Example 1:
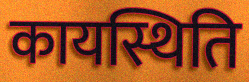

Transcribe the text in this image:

कायस्थिति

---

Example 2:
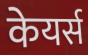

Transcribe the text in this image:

केयर्स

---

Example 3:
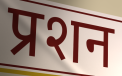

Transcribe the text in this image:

प्रशन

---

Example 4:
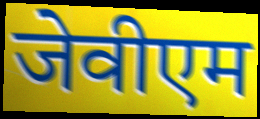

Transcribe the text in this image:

जेवीएम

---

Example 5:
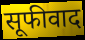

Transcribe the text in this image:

सूफीवाद